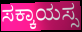
ಸಕ್ಕಾಯಸ್ಸ